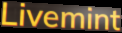
Livemint